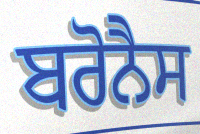
ਬਰੋਨੈਸ